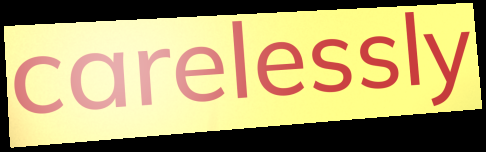
carelessly